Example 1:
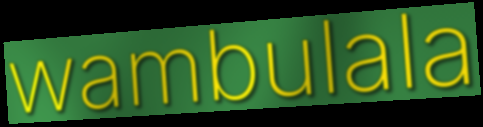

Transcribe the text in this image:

wambulala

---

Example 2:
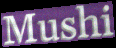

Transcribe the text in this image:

Mushi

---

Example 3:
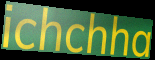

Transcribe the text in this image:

ichchha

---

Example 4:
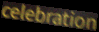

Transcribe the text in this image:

celebration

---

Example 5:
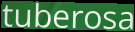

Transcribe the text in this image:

tuberosa